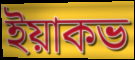
ইয়াকভ